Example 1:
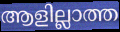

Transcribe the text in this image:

ആളില്ലാത്ത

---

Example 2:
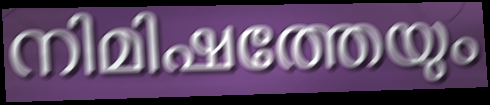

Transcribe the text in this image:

നിമിഷത്തേയും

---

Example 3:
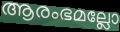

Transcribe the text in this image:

ആരംഭമല്ലോ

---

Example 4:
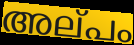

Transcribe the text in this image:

അല്‌പം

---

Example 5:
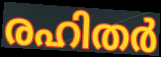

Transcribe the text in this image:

രഹിതർ